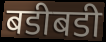
बडीबडी